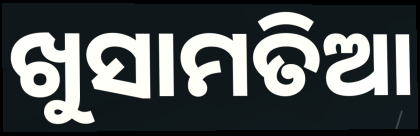
ଖୁସାମତିଆ